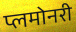
प्लमोनरी